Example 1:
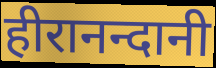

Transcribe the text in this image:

हीरानन्दानी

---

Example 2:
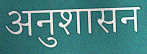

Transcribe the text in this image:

अनुशासन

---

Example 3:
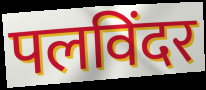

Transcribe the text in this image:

पलविंदर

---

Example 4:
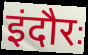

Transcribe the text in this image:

इंदौरः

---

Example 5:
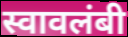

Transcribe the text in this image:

स्वावलंबी